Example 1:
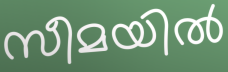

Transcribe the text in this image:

സീമയിൽ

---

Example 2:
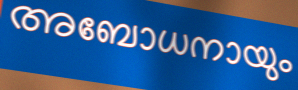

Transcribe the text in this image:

അബോധനായും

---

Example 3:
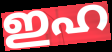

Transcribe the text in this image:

ഇഹ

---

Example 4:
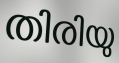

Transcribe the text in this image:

തിരിയു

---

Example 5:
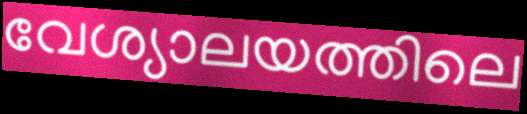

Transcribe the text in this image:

വേശ്യാലയത്തിലെ